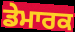
ਡੇਮਾਰਕ